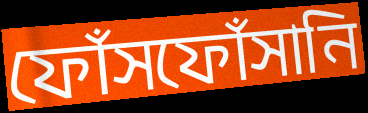
ফোঁসফোঁসানি